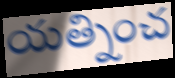
యత్నించ